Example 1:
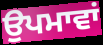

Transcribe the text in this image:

ਉਪਮਾਵਾਂ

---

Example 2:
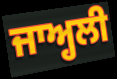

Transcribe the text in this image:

ਜਾਅ੍ਹਲੀ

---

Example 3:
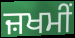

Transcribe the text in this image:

ਜ਼ਖਮੀਂ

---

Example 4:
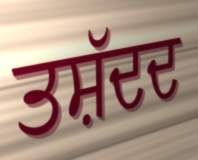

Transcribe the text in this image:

ਤਸ਼ੱਦਦ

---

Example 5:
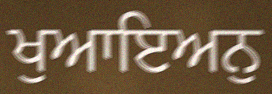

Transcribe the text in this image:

ਖੁਆਇਅਨੁ